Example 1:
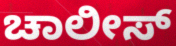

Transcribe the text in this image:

ಚಾಲೀಸ್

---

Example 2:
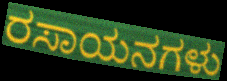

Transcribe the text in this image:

ರಸಾಯನಗಳು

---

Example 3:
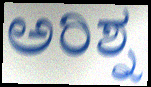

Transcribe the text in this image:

ಅರಿಶ್ನ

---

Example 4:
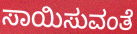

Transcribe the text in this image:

ಸಾಯಿಸುವಂತೆ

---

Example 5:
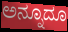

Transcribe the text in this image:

ಅನ್ನೂದೂ